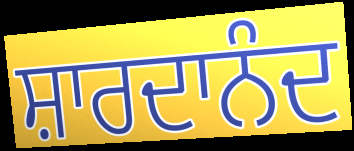
ਸ਼ਾਰਦਾਨੰਦ